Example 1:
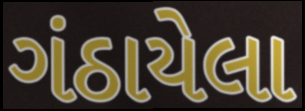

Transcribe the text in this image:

ગંઠાયેલા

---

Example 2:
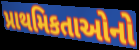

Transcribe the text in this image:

પ્રાથમિકતાઓનો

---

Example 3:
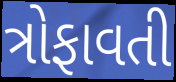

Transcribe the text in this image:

ત્રોફાવતી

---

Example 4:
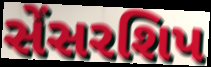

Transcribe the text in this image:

સેંસરશિપ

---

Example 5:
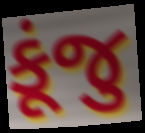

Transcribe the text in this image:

કૂંજુ